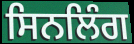
ਸਿਨਲਿੰਗ